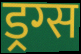
ड्रग्‍स